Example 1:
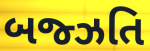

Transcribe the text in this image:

બજ્ઝતિ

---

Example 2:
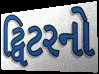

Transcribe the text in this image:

ટ્વિટરનો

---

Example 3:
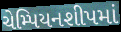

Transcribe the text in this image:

ચેમ્પિયનશીપમાં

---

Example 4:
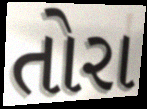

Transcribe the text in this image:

તોરા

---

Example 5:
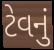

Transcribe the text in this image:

ટેવનું